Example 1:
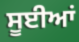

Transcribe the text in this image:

ਸੂਈਆਂ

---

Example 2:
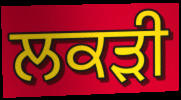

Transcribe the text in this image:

ਲਕੜੀ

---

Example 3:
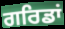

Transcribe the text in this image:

ਗਰਿਡਾਂ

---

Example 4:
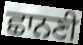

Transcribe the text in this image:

ਛਾਨਣੀ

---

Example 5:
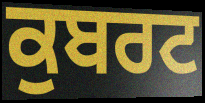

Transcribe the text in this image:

ਕੁਬਰਟ